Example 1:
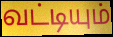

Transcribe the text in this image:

வட்டியும்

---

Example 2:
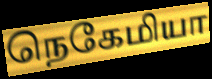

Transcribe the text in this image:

நெகேமியா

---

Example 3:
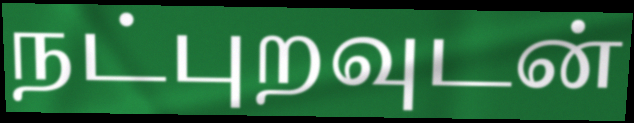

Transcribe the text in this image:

நட்புறவுடன்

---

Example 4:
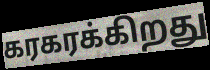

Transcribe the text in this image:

கரகரக்கிறது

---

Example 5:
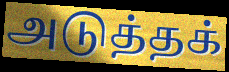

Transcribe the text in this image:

அடுத்தக்